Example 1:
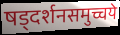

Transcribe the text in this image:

षड्दर्शनसमुच्चये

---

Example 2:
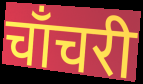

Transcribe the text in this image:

चाँचरी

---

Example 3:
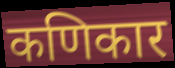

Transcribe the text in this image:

कणिकार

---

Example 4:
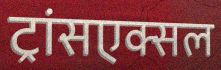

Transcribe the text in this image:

ट्रांसएक्सल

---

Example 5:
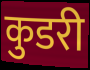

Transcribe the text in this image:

कुडरी